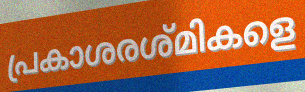
പ്രകാശരശ്മികളെ